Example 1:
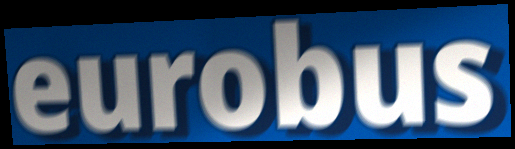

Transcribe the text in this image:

eurobus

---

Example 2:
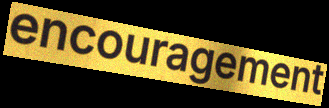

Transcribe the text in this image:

encouragement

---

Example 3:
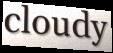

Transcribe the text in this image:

cloudy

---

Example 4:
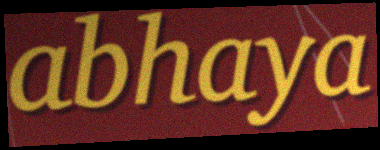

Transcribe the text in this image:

abhaya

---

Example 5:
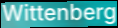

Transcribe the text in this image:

Wittenberg